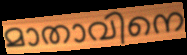
മാതാവിനെ